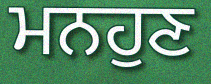
ਮਨਹੁਣ